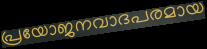
പ്രയോജനവാദപരമായ